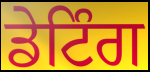
ਡੇਟਿੰਗ